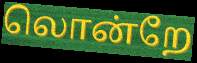
லொன்றே